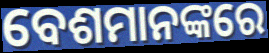
ବେଶମାନଙ୍କରେ